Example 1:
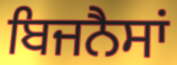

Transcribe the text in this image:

ਬਿਜਨੈਸਾਂ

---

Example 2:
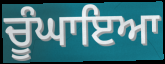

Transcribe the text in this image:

ਚੂੰਘਾਇਆ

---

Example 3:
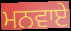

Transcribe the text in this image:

ਮਨਵਾਏ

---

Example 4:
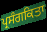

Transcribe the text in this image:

ਪ੍ਰਸੰਗਕਿਤਾ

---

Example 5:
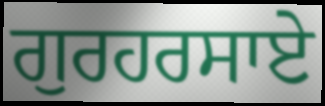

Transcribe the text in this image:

ਗੁਰਹਰਸਾਏ